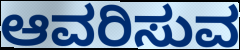
ಆವರಿಸುವ